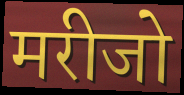
मरीजो